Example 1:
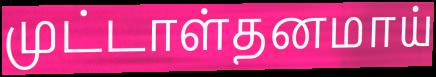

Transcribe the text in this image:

முட்டாள்தனமாய்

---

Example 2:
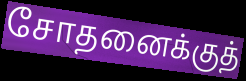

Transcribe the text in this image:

சோதனைக்குத்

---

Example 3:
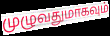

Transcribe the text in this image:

முழுவதுமாகவும்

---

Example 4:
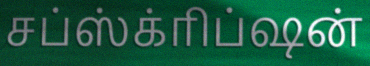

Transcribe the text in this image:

சப்ஸ்க்ரிப்ஷன்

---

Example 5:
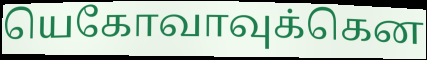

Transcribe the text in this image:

யெகோவாவுக்கென